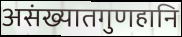
असंख्यातगुणहानि